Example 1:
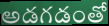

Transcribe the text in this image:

అడగడంతో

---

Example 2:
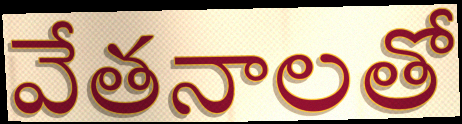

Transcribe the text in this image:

వేతనాలతో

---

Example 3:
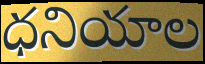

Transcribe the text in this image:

ధనియాల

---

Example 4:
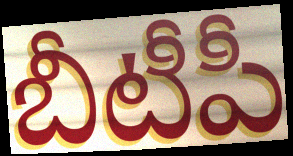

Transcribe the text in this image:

బీటీపీ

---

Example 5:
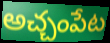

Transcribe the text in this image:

అచ్చంపేట